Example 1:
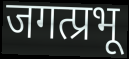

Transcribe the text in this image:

जगत्प्रभू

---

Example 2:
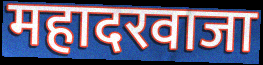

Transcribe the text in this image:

महादरवाजा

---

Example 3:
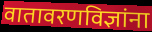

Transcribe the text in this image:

वातावरणविज्ञांना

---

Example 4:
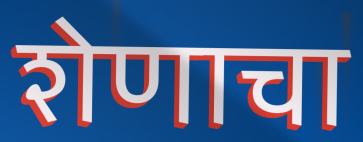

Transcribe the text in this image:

शेणाचा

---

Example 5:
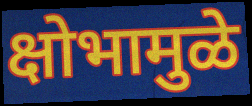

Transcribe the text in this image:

क्षोभामुळे